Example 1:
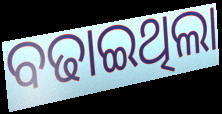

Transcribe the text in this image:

ବଢାଇଥିଲା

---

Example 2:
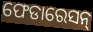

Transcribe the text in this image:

ଫେଡାରେସନ୍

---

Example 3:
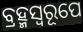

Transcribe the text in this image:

ବ୍ରହ୍ମସ୍ୱରୂପେ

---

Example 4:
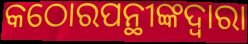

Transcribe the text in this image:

କଠୋରପନ୍ଥୀଙ୍କଦ୍ୱାରା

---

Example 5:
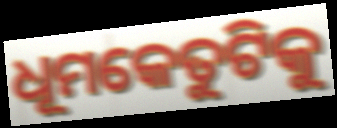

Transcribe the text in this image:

ଧୂମକେତୁଟିକୁ